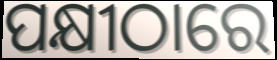
ପକ୍ଷୀଠାରେ